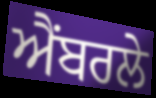
ਐਂਬਰਲੇ